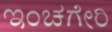
ಇಂಚಗೇರಿ